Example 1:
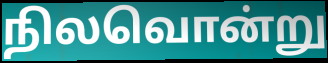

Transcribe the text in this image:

நிலவொன்று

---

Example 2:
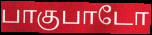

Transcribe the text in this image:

பாகுபாடோ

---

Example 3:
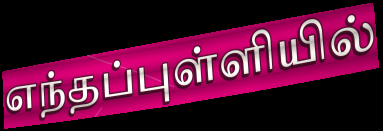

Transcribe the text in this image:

எந்தப்புள்ளியில்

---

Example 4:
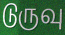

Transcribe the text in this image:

டுருவு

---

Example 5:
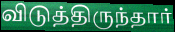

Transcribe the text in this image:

விடுத்திருந்தார்